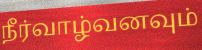
நீர்வாழ்வனவும்